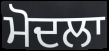
ਮੋਦਲਾ